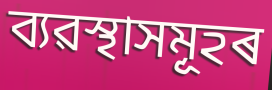
ব্যৱস্থাসমূহৰ